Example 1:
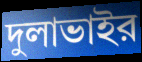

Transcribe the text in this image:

দুলাভাইর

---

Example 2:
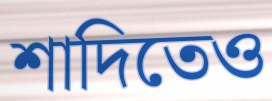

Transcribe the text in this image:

শাদিতেও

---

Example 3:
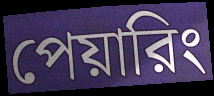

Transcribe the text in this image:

পেয়ারিং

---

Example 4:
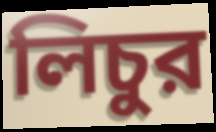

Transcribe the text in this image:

লিচুর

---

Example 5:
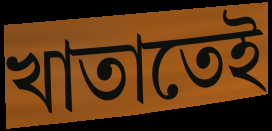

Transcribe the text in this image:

খাতাতেই